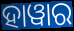
ହାୱାର